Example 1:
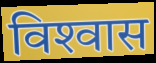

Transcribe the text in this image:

विश्‍वास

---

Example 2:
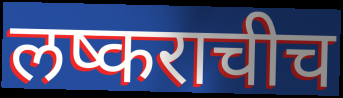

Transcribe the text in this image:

लष्कराचीच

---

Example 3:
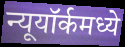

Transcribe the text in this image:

न्यूयॉर्कमध्ये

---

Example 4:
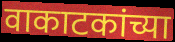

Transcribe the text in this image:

वाकाटकांच्या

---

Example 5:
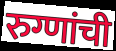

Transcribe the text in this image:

रुग्‍णांची